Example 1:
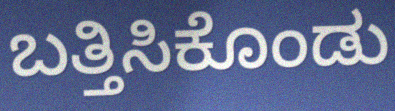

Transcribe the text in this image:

ಬತ್ತಿಸಿಕೊಂಡು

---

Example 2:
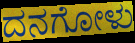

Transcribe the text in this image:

ದನಗೋಳು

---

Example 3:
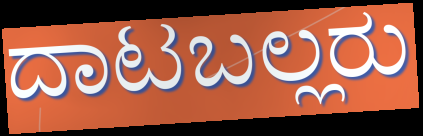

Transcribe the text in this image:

ದಾಟಬಲ್ಲರು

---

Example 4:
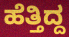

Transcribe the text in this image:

ಹೆತ್ತಿದ್ದ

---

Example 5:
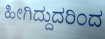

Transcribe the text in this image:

ಹೀಗಿದ್ದುದರಿಂದ